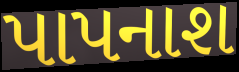
પાપનાશ